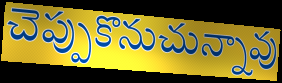
చెప్పుకొనుచున్నావు